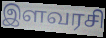
இளவரசி